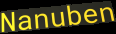
Nanuben